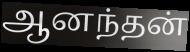
ஆனந்தன்